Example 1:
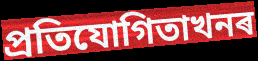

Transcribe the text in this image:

প্ৰতিযোগিতাখনৰ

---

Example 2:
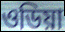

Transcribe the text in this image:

ওডিয়া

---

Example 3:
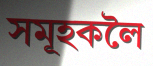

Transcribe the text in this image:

সমূহকলৈ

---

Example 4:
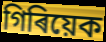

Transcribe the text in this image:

গিৰিয়েক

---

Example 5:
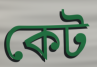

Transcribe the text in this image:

কেট